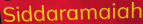
Siddaramaiah